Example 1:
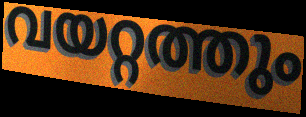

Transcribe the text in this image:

വയറ്റത്തും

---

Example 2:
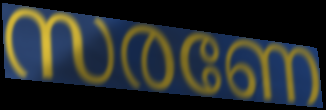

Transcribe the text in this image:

സരണേ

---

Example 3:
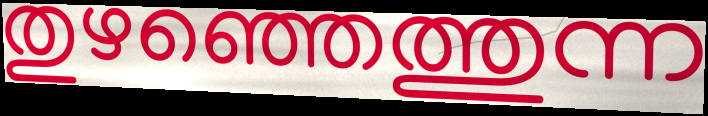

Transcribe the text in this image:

തുഴഞ്ഞെത്തുന്ന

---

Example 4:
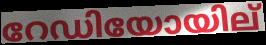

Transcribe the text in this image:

റേഡിയോയില്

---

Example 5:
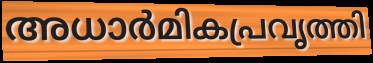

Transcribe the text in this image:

അധാർമികപ്രവൃത്തി